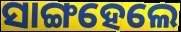
ସାଙ୍ଗହେଲେ